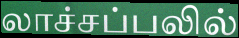
லாச்சப்பலில்